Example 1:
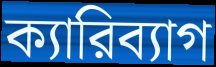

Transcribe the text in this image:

ক্যারিব্যাগ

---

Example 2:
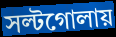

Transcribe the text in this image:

সল্টগোলায়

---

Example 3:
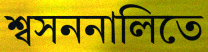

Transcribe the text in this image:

শ্বসননালিতে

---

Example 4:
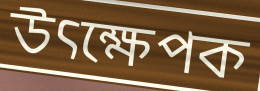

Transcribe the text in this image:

উৎক্ষেপক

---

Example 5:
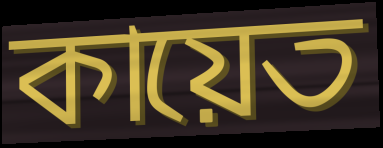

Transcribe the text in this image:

কায়েত